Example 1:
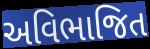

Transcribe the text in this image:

અવિભાજિત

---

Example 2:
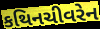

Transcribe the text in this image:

કથિનચીવરેન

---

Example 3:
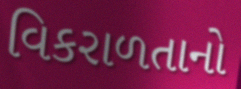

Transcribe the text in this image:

વિકરાળતાનો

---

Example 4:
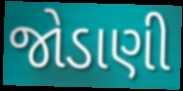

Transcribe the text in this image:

જોડાણી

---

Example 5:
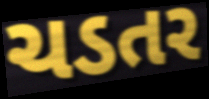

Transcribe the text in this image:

ચડતર